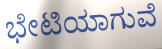
ಭೇಟಿಯಾಗುವೆ